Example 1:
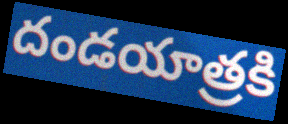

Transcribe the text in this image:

దండయాత్రకి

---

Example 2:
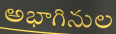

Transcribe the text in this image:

అభాగినుల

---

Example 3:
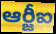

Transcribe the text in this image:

ఆర్జీఐ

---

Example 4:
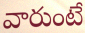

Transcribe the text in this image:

వారుంటే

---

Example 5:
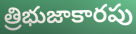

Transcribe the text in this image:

త్రిభుజాకారపు